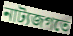
নাট্যজগতে